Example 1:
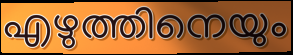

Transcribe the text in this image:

എഴുത്തിനെയും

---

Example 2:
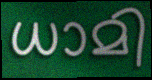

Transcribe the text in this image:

ധാമി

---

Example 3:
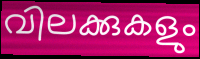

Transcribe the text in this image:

വിലക്കുകളും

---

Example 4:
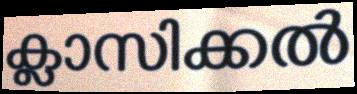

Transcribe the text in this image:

ക്ലാസിക്കൽ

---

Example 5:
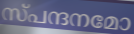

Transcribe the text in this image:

സ്പന്ദനമോ